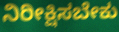
ನಿರೀಕ್ಷಿಸಬೇಕು